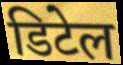
डिटेल